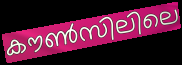
കൗൺസിലിലെ